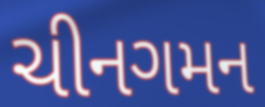
ચીનગમન